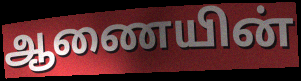
ஆணையின்